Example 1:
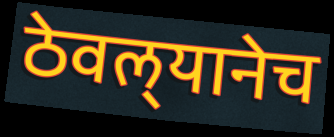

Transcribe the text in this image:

ठेवल्यानेच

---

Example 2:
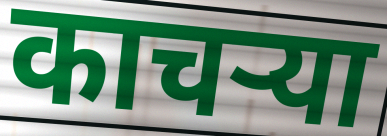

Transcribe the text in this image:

काचऱ्या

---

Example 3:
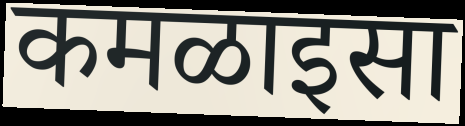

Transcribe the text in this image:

कमळाइसा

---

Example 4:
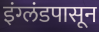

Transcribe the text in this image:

इंग्लंडपासून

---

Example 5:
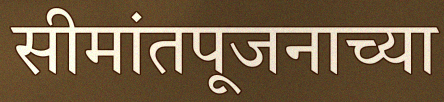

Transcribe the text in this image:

सीमांतपूजनाच्या